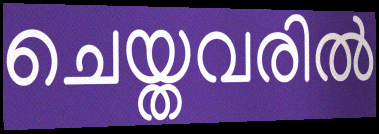
ചെയ്തവരിൽ